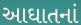
આઘાતનાં